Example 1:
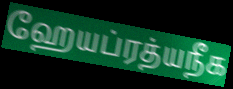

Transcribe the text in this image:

ஹேயப்ரத்யநீக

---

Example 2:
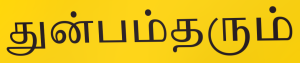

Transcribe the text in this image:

துன்பம்தரும்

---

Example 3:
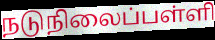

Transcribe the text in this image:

நடுநிலைப்பள்ளி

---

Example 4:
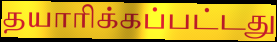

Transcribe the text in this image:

தயாரிக்கப்பட்டது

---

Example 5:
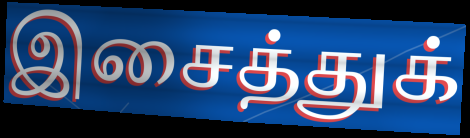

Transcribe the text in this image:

இசைத்துக்